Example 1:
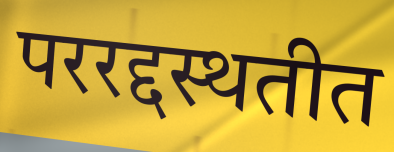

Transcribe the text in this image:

पररद्दस्थतीत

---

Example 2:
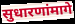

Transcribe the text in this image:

सुधारणांमागे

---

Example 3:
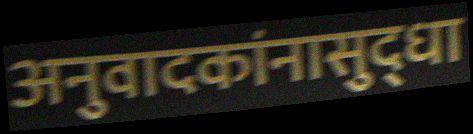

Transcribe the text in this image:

अनुवादकांनासुद्धा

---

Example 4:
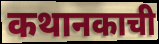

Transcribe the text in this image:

कथानकाची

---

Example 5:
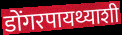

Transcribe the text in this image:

डोंगरपायथ्याशी